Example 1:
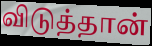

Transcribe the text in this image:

விடுத்தான்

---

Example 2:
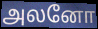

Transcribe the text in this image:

அலனோ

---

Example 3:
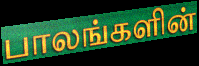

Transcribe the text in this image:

பாலங்களின்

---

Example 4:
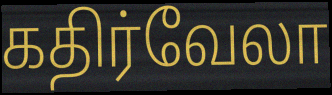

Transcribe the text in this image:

கதிர்வேலா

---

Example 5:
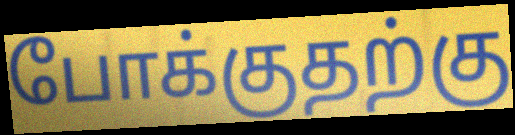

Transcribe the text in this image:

போக்குதற்கு